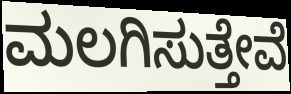
ಮಲಗಿಸುತ್ತೇವೆ